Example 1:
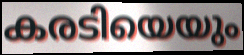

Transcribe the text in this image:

കരടിയെയും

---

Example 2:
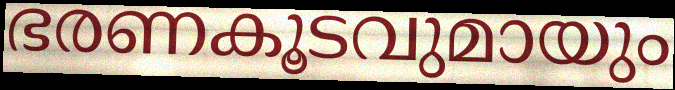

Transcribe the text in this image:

ഭരണകൂടവുമായും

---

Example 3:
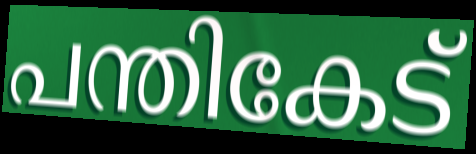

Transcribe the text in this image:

പന്തികേട്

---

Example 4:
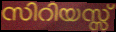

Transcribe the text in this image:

സിറിയസ്സ്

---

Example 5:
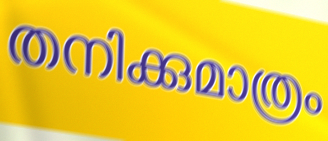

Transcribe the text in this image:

തനിക്കുമാത്രം